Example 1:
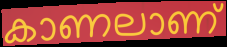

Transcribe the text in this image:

കാണലാണ്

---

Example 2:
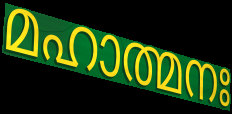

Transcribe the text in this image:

മഹാത്മനഃ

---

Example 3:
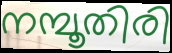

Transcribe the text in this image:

നമ്പൂതിരി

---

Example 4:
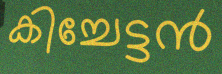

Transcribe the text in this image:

കിച്ചേട്ടൻ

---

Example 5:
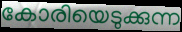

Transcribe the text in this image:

കോരിയെടുക്കുന്ന